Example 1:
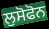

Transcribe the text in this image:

ਲੁਸੋਫੋਨ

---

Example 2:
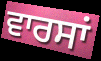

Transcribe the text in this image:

ਵਾਰਸਾਂ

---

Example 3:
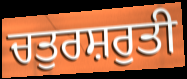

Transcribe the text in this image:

ਚਤੁਰਸ਼ਰੁਤੀ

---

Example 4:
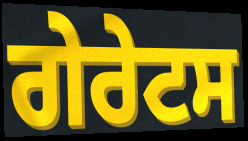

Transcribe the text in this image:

ਗੇਰੇਟਸ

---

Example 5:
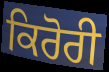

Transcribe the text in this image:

ਕਿਰੋਰੀ